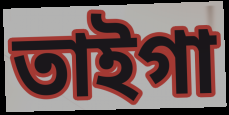
তাইগা